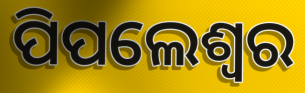
ପିପଲେଶ୍ୱର